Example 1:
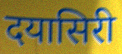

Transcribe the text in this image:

दयासिरी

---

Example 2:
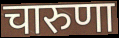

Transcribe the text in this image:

चारुणा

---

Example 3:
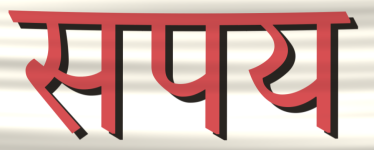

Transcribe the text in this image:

सपय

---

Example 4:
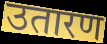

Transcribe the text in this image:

उतारण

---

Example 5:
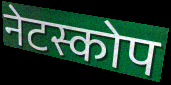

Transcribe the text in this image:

नेटस्कोप